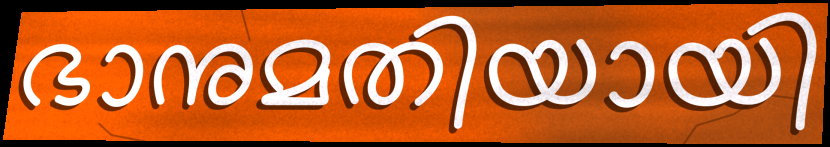
ഭാനുമതിയായി